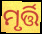
ମୃର୍ତ୍ତି